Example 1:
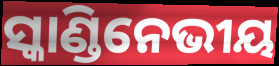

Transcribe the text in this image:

ସ୍କାଣ୍ଡିନେଭୀୟ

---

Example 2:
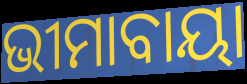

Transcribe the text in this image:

ଭୀମାବାୟା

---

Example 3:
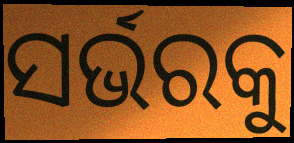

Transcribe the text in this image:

ସର୍ଭରକୁ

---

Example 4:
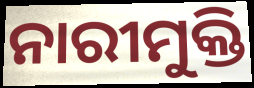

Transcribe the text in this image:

ନାରୀମୁକ୍ତି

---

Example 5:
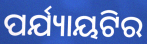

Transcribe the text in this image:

ପର୍ଯ୍ୟାୟଟିର